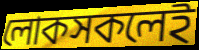
লোকসকলেই